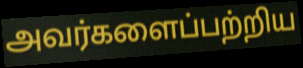
அவர்களைப்பற்றிய